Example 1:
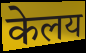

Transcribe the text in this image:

केलय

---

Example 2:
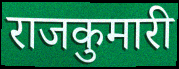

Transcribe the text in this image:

राजकुमारी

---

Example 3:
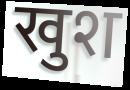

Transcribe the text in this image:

खुश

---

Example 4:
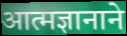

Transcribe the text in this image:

आत्मज्ञानाने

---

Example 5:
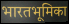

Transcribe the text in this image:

भारतभूमिका